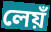
লেয়ঁ